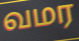
வமர